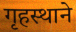
गृहस्थाने